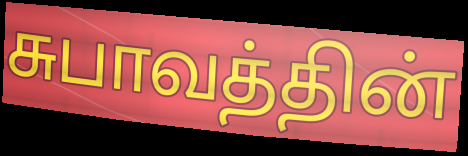
சுபாவத்தின்